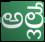
అల్లే